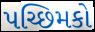
પચ્છિમકો